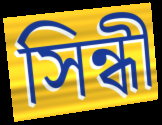
সিন্ধী